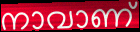
നാവാണ്